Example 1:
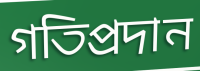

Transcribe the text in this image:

গতিপ্রদান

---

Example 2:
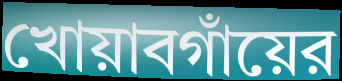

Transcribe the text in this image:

খোয়াবগাঁয়ের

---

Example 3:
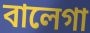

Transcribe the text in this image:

বালেগা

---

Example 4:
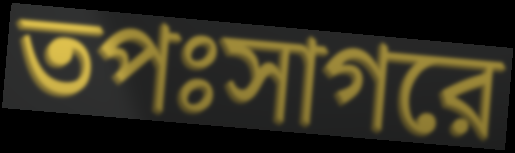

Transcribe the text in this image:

তপঃসাগরে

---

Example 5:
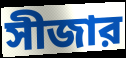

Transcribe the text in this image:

সীজার